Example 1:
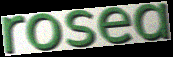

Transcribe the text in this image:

rosea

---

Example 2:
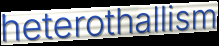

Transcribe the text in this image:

heterothallism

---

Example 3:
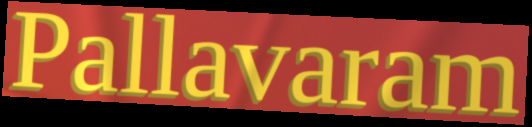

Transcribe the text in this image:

Pallavaram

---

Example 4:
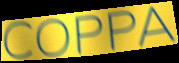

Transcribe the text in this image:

COPPA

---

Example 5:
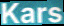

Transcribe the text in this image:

Kars